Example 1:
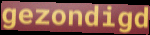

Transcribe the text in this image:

gezondigd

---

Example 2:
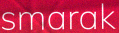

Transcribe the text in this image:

smarak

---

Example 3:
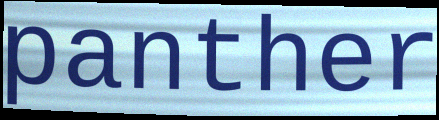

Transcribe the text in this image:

panther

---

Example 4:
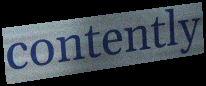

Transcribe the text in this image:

contently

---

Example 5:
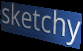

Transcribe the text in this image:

sketchy